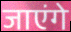
जाएंगे